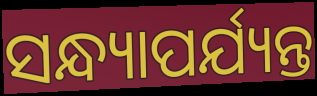
ସନ୍ଧ୍ୟାପର୍ଯ୍ୟନ୍ତ